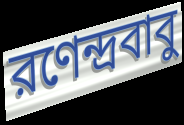
রণেন্দ্রবাবু